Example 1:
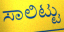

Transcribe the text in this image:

ಸಾಲಿಟ್ಟು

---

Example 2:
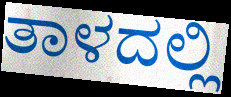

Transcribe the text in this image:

ತಾಳದಲ್ಲಿ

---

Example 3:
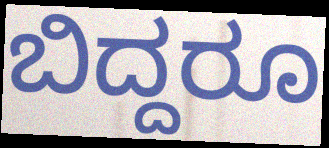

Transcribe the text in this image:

ಬಿದ್ದರೂ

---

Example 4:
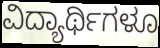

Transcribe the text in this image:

ವಿದ್ಯಾರ್ಥಿಗಳೂ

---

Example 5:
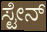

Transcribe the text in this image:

ಸ್ಟೇನ್